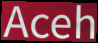
Aceh